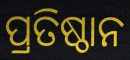
ପ୍ରତିଷ୍ଠାନ